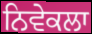
ਨਿਵੇਕਲਾ